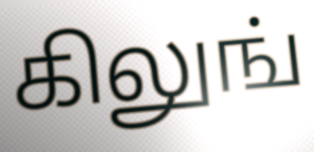
கிலுங்